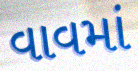
વાવમાં